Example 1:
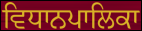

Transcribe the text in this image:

ਵਿਧਾਨਪਾਲਿਕਾ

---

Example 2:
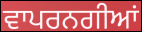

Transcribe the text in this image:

ਵਾਪਰਨਗੀਆਂ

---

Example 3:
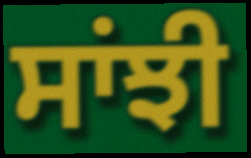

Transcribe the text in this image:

ਸਾਂਝੀ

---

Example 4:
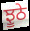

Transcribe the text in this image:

ਝੂਠੇ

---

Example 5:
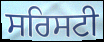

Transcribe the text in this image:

ਸਰਿਸਟੀ